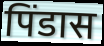
पिंडास